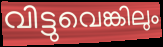
വിട്ടുവെങ്കിലും